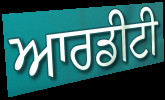
ਆਰਡੀਟੀ